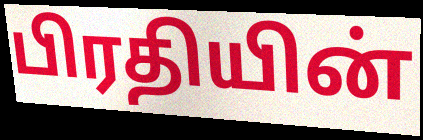
பிரதியின்